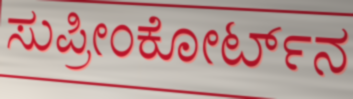
ಸುಪ್ರೀಂಕೋರ್ಟ್‌ನ